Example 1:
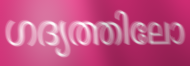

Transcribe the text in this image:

ഗദ്യത്തിലോ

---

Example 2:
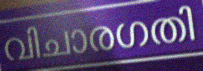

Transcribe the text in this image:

വിചാരഗതി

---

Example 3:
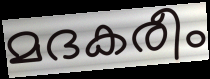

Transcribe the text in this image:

മദകരീം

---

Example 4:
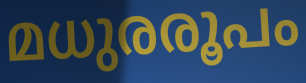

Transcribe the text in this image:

മധുരരൂപം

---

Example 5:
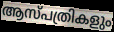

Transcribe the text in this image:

ആസ്പത്രികളും